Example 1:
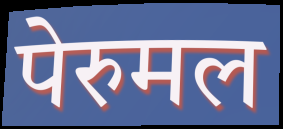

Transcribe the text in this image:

पेरुमल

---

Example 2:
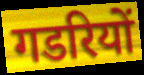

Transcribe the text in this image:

गडरियों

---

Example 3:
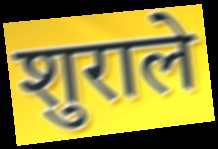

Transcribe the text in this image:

शुराले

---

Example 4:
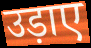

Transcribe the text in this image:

उड़ाए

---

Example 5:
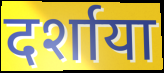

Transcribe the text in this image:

दर्शाया